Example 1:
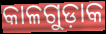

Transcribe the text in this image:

କାଳଗୁଡ଼ାକ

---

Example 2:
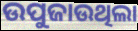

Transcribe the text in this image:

ଉପୁଜାଉଥିଲା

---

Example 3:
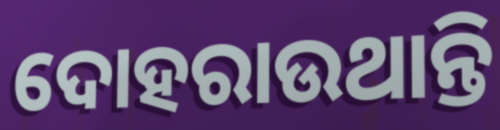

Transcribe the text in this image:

ଦୋହରାଉଥାନ୍ତି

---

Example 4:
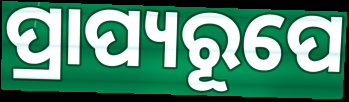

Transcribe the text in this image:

ପ୍ରାପ୍ୟରୂପେ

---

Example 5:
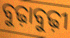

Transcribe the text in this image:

ବୁଢ଼ାବୁଢ଼ୀ